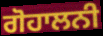
ਗੋਹਾਲਨੀ